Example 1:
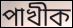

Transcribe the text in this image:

পাখীক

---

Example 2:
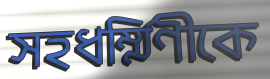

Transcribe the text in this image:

সহধর্ম্মিণীকে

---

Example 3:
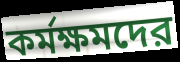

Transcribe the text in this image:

কর্মক্ষমদের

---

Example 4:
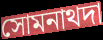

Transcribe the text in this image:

সোমনাথদা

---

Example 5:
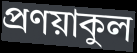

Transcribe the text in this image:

প্রণয়াকুল